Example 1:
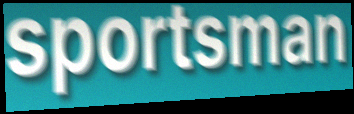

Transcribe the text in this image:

sportsman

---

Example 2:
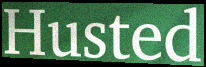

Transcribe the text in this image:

Husted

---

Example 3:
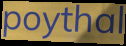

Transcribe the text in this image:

poythal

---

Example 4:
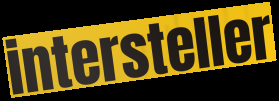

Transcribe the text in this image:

intersteller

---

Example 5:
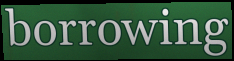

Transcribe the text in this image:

borrowing